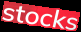
stocks